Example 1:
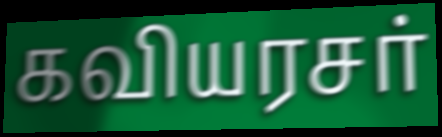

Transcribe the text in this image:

கவியரசர்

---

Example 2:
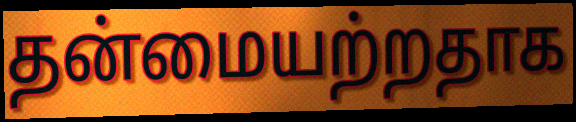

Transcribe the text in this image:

தன்மையற்றதாக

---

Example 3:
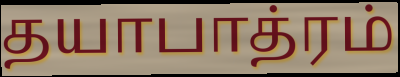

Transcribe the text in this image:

தயாபாத்ரம்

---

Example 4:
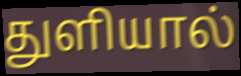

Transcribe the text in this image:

துளியால்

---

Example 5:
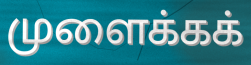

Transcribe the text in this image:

முளைக்கக்